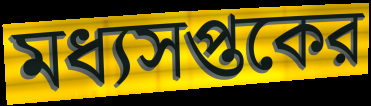
মধ্যসপ্তকের